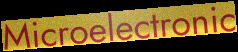
Microelectronic